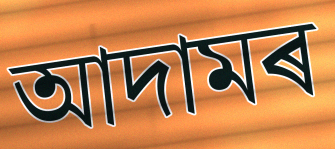
আদামৰ